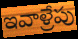
ఇవాళ్రేపు